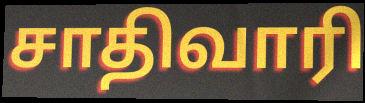
சாதிவாரி